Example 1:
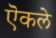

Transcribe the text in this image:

ऎकले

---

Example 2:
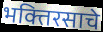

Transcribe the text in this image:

भक्तिरसाचे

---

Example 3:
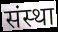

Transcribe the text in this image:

संस्था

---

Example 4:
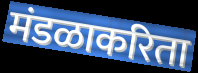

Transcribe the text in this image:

मंडळाकरिता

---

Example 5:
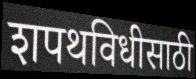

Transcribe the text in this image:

शपथविधीसाठी